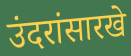
उंदरांसारखे